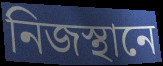
নিজস্থানে